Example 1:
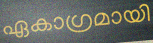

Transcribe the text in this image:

ഏകാഗ്രമായി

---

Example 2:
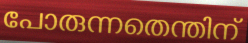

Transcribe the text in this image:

പോരുന്നതെന്തിന്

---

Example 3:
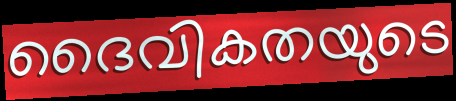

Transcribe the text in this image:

ദൈവികതയുടെ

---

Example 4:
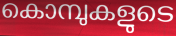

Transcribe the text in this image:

കൊമ്പുകളുടെ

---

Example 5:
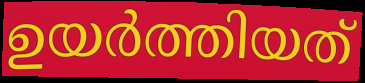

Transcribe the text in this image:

ഉയർത്തിയത്